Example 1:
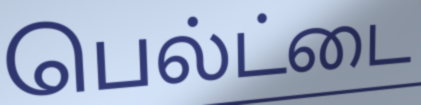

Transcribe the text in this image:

பெல்ட்டை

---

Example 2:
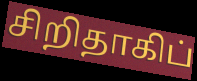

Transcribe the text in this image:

சிறிதாகிப்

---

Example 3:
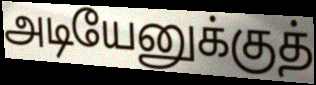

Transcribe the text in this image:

அடியேனுக்குத்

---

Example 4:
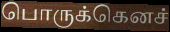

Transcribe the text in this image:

பொருக்கெனச்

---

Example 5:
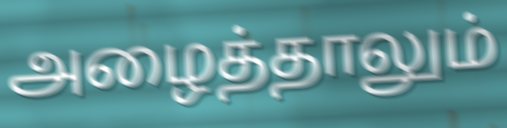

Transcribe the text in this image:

அழைத்தாலும்